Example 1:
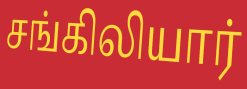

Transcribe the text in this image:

சங்கிலியார்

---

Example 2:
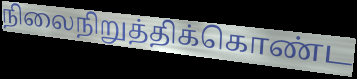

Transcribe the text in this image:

நிலைநிறுத்திக்கொண்ட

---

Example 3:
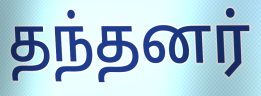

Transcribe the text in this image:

தந்தனர்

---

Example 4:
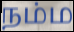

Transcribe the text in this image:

நம்ம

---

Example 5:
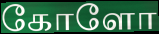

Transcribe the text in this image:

கோளோ